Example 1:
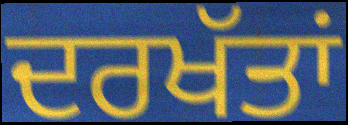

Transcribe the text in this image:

ਦਰਖੱਤਾਂ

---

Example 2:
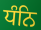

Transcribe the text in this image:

ਧੰਨਿ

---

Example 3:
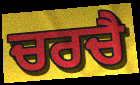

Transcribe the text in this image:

ਚਰਚੈ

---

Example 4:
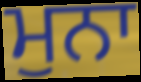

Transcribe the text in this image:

ਮੁਨਾ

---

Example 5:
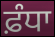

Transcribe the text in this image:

ਫ਼ੰਧਾ